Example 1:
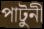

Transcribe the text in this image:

পাটুনী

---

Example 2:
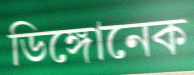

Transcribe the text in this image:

ডিঙ্গোনেক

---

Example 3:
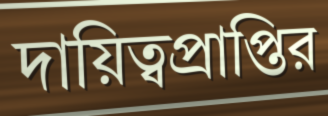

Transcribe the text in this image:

দায়িত্বপ্রাপ্তির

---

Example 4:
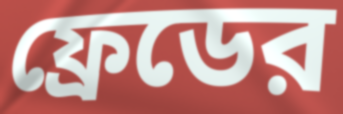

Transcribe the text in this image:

ফ্রেডের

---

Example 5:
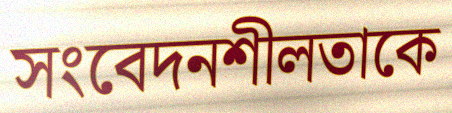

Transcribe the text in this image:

সংবেদনশীলতাকে